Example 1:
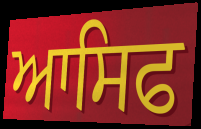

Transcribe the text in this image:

ਆਸਿਫ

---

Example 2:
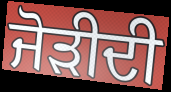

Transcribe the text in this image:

ਜੋੜੀਦੀ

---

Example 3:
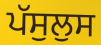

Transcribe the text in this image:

ਪੱਸੁਲੁਸ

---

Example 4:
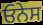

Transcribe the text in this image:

ਓਨੇਸ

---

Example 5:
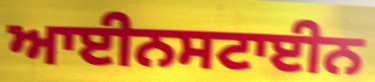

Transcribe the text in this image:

ਆਈਨਸਟਾਈਨ